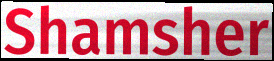
Shamsher